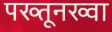
पख्तूनख्वा